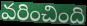
వరించింది